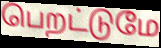
பெறட்டுமே